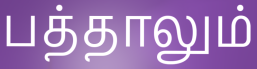
பத்தாலும்